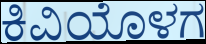
ಕಿವಿಯೊಳಗ